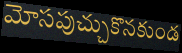
మోసపుచ్చుకొనకుండ